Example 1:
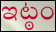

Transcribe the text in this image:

ఇట్ఠం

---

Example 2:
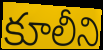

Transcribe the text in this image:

కూలీని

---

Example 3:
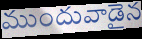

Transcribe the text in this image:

ముందువాడైన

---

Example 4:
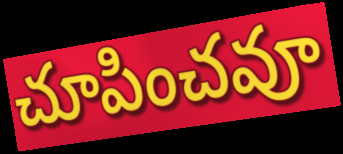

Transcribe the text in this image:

చూపించవూ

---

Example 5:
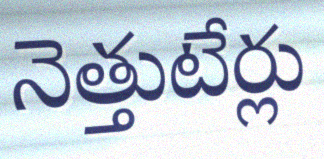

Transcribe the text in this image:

నెత్తుటేర్లు